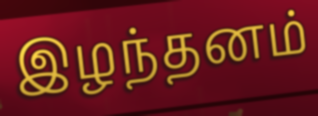
இழந்தனம்